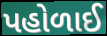
પહોળાઈ